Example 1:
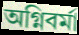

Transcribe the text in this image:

অগ্নিবর্মা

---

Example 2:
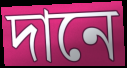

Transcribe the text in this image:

দানে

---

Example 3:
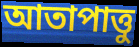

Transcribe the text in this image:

আতাপাত্তু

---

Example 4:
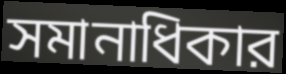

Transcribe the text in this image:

সমানাধিকার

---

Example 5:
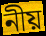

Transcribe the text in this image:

নীয়